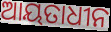
ଆୟତାଧୀନ